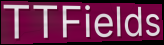
TTFields